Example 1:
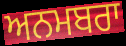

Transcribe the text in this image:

ਅਨਮਬਰਾ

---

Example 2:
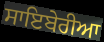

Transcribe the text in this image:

ਸਾਇਬੇਰੀਆ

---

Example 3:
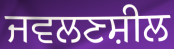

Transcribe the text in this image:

ਜਵਲਣਸ਼ੀਲ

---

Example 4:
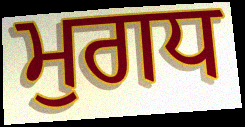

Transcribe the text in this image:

ਮੁਗਧ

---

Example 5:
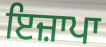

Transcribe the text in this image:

ਇਜ਼ਾਪਾ